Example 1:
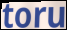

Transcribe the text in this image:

toru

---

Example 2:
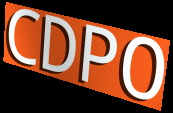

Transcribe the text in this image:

CDPO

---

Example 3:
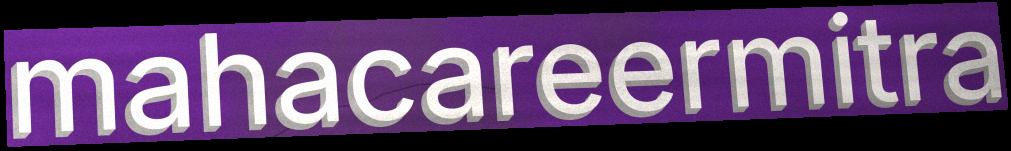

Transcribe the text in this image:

mahacareermitra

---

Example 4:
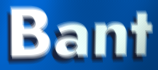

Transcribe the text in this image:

Bant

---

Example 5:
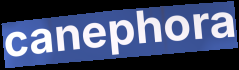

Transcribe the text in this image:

canephora